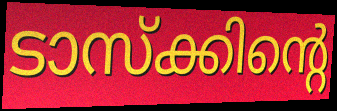
ടാസ്ക്കിന്റെ